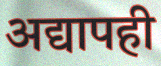
अद्यापही